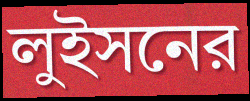
লুইসনের